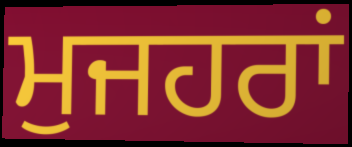
ਮੁਜਹਰਾਂ